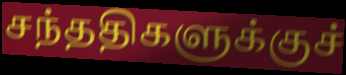
சந்ததிகளுக்குச்